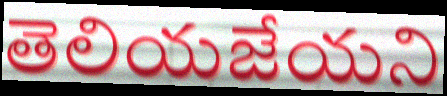
తెలియజేయని